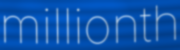
millionth